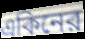
একিনের